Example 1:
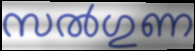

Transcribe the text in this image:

സൽഗുണ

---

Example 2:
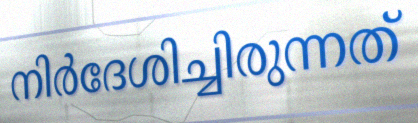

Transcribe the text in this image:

നിർദേശിച്ചിരുന്നത്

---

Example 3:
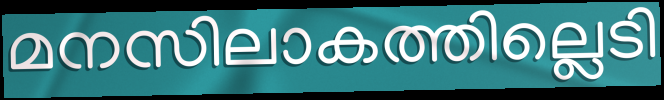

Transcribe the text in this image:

മനസിലാകത്തില്ലെടി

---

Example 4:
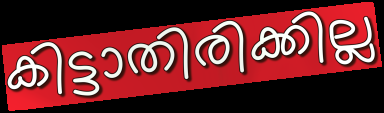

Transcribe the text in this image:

കിട്ടാതിരിക്കില്ല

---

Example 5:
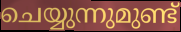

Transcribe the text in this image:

ചെയ്യുന്നുമുണ്ട്